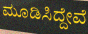
ಮೂಡಿಸಿದ್ದೇವೆ